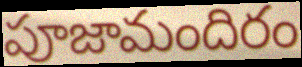
పూజామందిరం